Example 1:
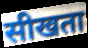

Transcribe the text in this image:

सीखता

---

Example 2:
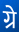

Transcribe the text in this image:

ग्रे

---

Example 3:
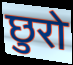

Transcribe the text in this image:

छुरो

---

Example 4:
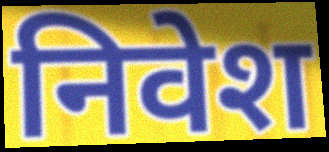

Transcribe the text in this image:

निवेश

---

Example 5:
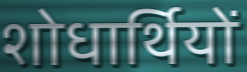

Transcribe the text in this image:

शोधार्थियों